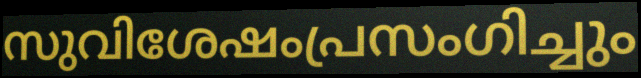
സുവിശേഷംപ്രസംഗിച്ചും